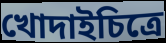
খোদাইচিত্রে